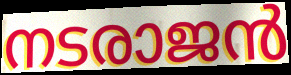
നടരാജൻ